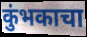
कुंभकाचा